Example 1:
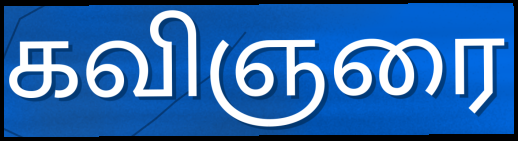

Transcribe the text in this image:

கவிஞரை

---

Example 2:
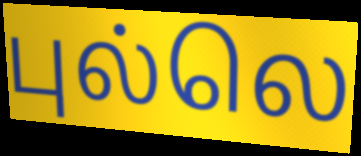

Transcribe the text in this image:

புல்லெ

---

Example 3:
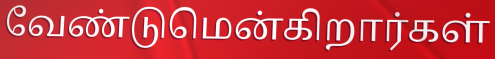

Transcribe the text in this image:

வேண்டுமென்கிறார்கள்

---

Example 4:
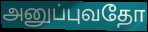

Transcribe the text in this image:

அனுப்புவதோ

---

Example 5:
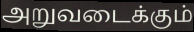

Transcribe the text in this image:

அறுவடைக்கும்